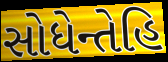
સોધેન્તેહિ